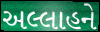
અલ્લાહને